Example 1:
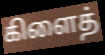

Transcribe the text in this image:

கிளைத்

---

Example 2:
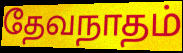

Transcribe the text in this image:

தேவநாதம்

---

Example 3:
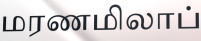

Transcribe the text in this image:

மரணமிலாப்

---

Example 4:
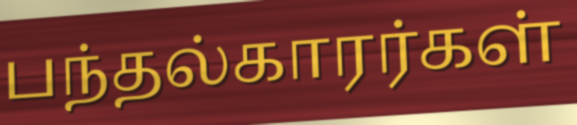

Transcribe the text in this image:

பந்தல்காரர்கள்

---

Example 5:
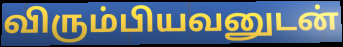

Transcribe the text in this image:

விரும்பியவனுடன்